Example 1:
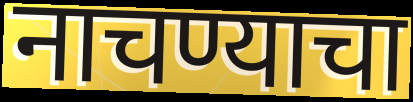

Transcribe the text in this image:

नाचण्याचा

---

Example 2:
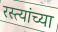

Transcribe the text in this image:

रस्त्यांच्या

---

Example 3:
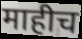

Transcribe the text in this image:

माहीच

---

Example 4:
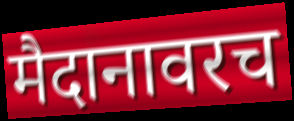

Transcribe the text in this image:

मैदानावरच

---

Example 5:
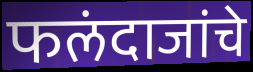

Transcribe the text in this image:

फलंदाजांचे